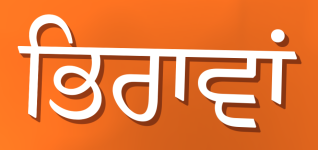
ਭਿਰਾਵਾਂ